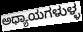
ಅಧ್ಯಾಯಗಳುಳ್ಳ